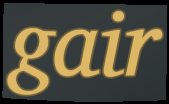
gair